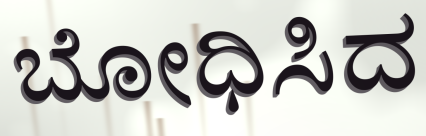
ಬೋಧಿಸಿದ